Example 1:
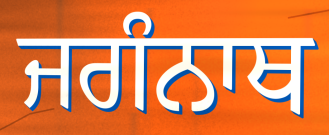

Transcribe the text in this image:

ਜਗੰਨਾਥ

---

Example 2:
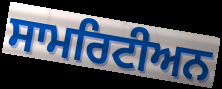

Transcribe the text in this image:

ਸਾਮਰਿਟੀਅਨ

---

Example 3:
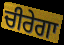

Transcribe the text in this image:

ਚੀਰੇਗਾ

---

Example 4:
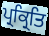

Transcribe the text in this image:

ਪ੍ਰਕ੍ਰਿਤਿ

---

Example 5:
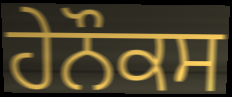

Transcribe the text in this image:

ਹੇਨੌਕਸ